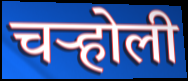
चऱ्होली